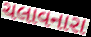
ચલાવનારા